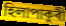
হিলাপাকুৰী